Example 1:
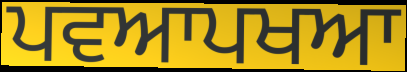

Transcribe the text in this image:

ਪਵਆਪਖਆ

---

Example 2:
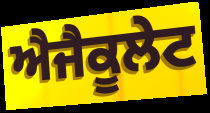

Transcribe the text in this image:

ਐਜੈਕੂਲੇਟ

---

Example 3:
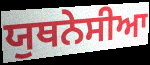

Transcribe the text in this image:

ਯੁਥਨੇਸੀਆ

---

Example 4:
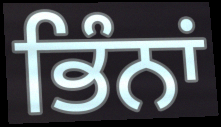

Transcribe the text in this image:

ਭਿੰਨਾਂ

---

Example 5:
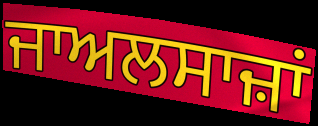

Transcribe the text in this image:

ਜਾਅਲਸਾਜ਼ਾਂ